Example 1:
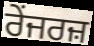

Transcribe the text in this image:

ਰੇਂਜਰਜ਼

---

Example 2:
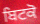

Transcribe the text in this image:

ਬਿਟਕੋ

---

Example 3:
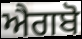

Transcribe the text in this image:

ਐਗਬੋ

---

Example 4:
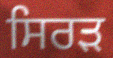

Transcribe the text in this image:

ਸਿਰੜ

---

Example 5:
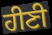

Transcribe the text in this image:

ਹੀਣੀ